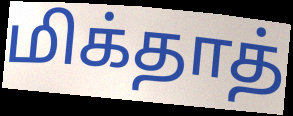
மிக்தாத்